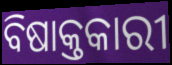
ବିଷାକ୍ତକାରୀ